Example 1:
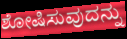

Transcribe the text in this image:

ಶೋಷಿಸುವುದನ್ನು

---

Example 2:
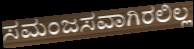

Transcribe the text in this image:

ಸಮಂಜಸವಾಗಿರಲಿಲ್ಲ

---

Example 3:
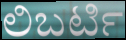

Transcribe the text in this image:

ಲಿಬರ್ಟಿ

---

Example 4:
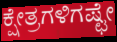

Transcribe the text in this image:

ಕ್ಷೇತ್ರಗಳಿಗಷ್ಟೇ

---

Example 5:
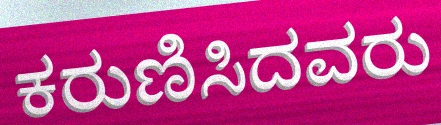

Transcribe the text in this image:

ಕರುಣಿಸಿದವರು